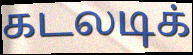
கடலடிக்